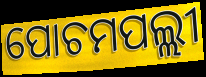
ପୋଚମପଲ୍ଲୀ